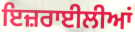
ਇਜ਼ਰਾਈਲੀਆਂ